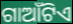
ଗାଆଁଟିଏ